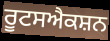
ਰੂਟਸਐਕਸ਼ਨ